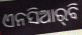
ଏନସିଆର୍‌ବି